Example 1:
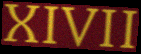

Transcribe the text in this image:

XIVII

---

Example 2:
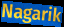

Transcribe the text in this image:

Nagarik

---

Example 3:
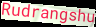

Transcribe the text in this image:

Rudrangshu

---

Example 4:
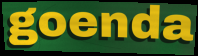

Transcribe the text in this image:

goenda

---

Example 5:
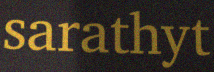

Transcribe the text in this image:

sarathyt